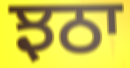
ਝਠਾ